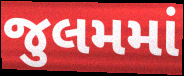
જુલમમાં